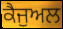
ਕੈਜੁਅਲ